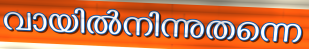
വായിൽനിന്നുതന്നെ